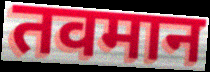
तवमान